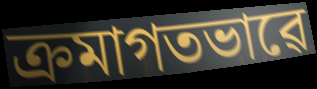
ক্ৰমাগতভাৱে